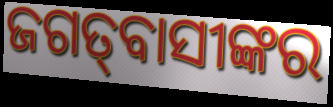
ଜଗତ୍‍ବାସୀଙ୍କର